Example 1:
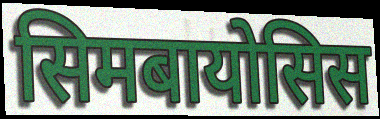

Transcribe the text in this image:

सिमबायोसिस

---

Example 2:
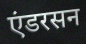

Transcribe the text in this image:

एंडरसन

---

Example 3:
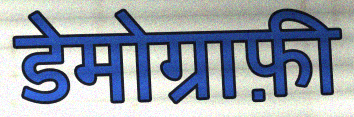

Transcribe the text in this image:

डेमोग्राफ़ी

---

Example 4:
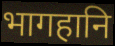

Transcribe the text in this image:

भागहानि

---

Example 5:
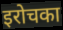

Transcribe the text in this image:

इरोचका